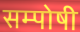
सम्पोषी